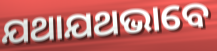
ଯଥାଯଥଭାବେ